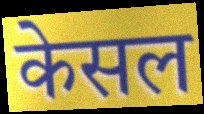
केसल